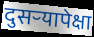
दुसऱ्यापेक्षा